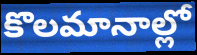
కొలమానాల్లో